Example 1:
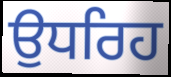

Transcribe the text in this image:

ਉਧਰਿਹ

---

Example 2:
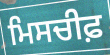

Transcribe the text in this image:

ਮਿਸਚੀਫ਼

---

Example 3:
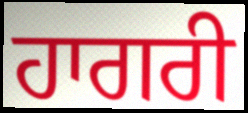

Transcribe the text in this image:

ਹਾਗਰੀ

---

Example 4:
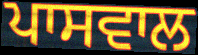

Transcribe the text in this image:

ਪਾਸਵਾਲ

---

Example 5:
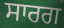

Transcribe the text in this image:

ਸਾਰਗ